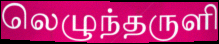
லெழுந்தருளி